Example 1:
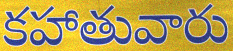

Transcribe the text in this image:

కహాతువారు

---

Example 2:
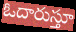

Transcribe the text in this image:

ఓదారుస్తూ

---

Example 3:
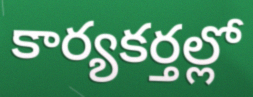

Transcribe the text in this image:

కార్యకర్తల్లో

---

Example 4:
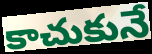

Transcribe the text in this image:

కాచుకునే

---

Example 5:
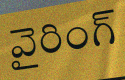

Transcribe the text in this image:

వైరింగ్